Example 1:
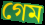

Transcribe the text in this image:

গেম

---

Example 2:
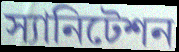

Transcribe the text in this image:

স্যানিটেশন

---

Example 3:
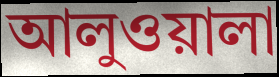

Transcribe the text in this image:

আলুওয়ালা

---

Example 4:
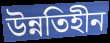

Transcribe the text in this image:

উন্নতিহীন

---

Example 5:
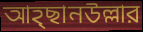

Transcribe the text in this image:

আহ্ছানউল্লার